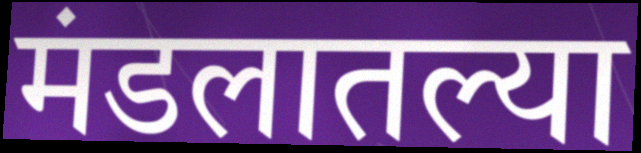
मंडलातल्या